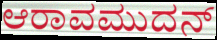
ಆರಾವಮುದನ್